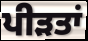
ਪੀੜਤਾਂ